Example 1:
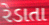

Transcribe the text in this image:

રેડાતા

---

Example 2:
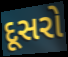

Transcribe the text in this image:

દૂસરો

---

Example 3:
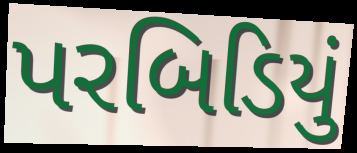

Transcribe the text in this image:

પરબિડિયું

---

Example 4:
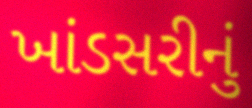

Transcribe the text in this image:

ખાંડસરીનું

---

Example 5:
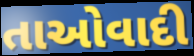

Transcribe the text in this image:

તાઓવાદી